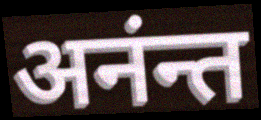
अनंन्त